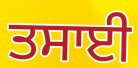
ਤਸਾਈ